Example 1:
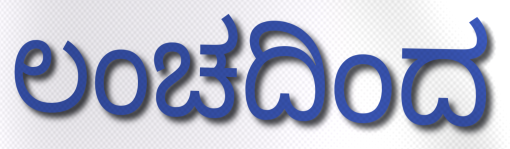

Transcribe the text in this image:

ಲಂಚದಿಂದ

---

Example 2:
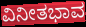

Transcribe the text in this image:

ವಿನೀತಭಾವ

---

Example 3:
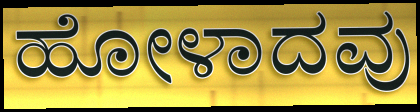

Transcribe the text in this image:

ಹೋಳಾದವು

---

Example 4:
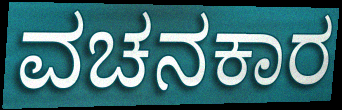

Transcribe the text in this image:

ವಚನಕಾರ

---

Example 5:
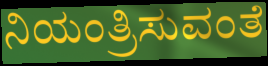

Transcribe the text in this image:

ನಿಯಂತ್ರಿಸುವಂತೆ